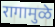
रागामुळे